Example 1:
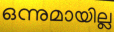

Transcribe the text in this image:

ഒന്നുമായില്ല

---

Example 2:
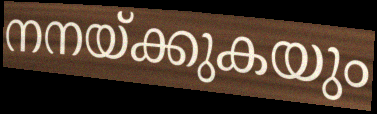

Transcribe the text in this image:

നനയ്ക്കുകയും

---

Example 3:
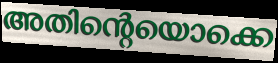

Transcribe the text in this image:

അതിന്റെയൊക്കെ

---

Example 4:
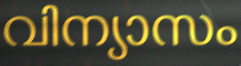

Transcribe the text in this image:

വിന്യാസം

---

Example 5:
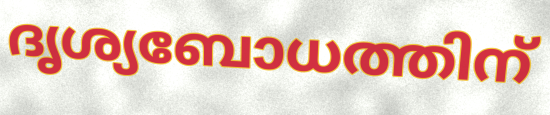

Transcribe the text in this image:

ദൃശ്യബോധത്തിന്